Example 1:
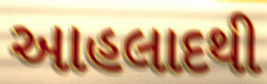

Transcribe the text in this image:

આહલાદથી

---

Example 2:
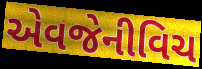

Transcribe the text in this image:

એવજેનીવિચ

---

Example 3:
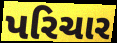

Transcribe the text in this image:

પરિચાર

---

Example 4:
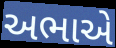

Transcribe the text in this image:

અભાએ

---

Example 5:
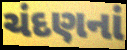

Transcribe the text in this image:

ચંદણનાં